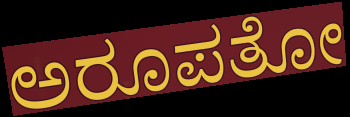
ಅರೂಪತೋ